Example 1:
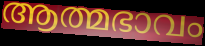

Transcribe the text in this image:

ആത്മഭാവം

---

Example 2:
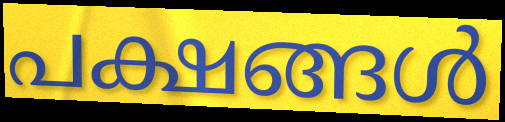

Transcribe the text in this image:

പക്ഷങ്ങൾ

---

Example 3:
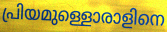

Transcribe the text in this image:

പ്രിയമുള്ളൊരാളിനെ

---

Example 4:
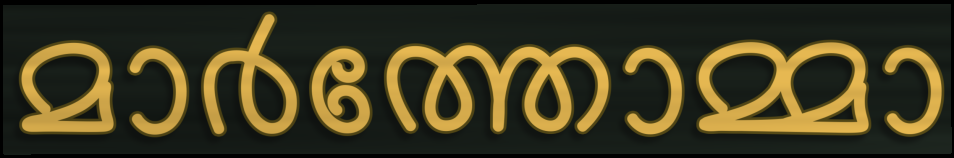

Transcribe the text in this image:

മാർത്തോമ്മാ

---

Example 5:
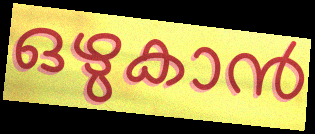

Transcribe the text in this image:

ഒഴുകാൻ